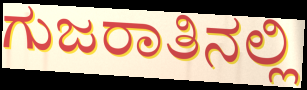
ಗುಜರಾತಿನಲ್ಲಿ